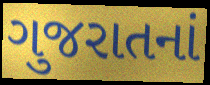
ગુજરાતનાં